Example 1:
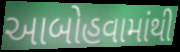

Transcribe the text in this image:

આબોહવામાંથી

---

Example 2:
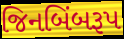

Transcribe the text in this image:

જિનબિંબરૂપ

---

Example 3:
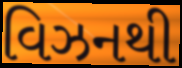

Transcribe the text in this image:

વિઝનથી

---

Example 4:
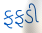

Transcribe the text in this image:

ફફડી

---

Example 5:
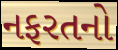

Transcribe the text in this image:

નફરતનો